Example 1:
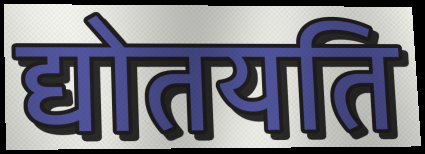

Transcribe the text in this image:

द्योतयति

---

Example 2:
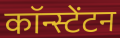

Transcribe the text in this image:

कॉन्स्टेंटन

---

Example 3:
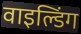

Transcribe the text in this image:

वाइल्डिंग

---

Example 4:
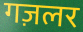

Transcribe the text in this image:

गज़लर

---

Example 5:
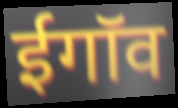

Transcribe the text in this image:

ईगॉव